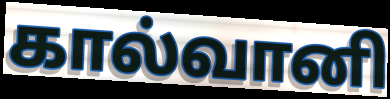
கால்வானி